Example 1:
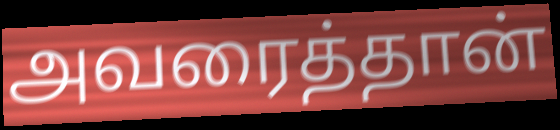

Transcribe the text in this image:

அவரைத்தான்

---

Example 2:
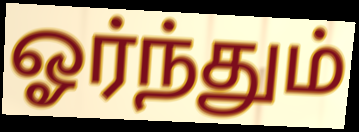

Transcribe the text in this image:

ஓர்ந்தும்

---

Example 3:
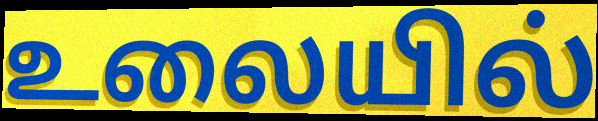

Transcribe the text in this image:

உலையில்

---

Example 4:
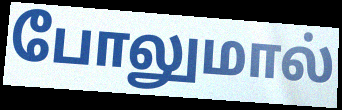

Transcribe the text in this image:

போலுமால்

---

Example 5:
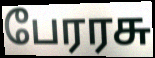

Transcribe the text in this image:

பேரரசு